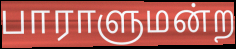
பாராளுமன்ற